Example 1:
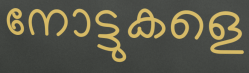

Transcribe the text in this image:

നോട്ടുകളെ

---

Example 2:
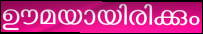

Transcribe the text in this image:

ഊമയായിരിക്കും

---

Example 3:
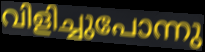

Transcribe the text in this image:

വിളിച്ചുപോന്നു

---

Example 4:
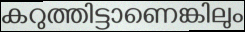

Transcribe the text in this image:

കറുത്തിട്ടാണെങ്കിലും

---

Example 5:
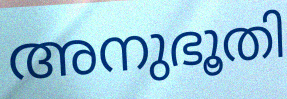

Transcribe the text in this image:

അനുഭൂതി